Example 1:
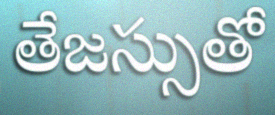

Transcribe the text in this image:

తేజస్సుతో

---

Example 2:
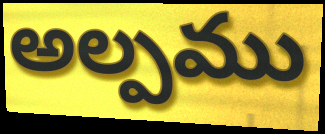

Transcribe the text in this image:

అల్పము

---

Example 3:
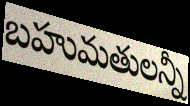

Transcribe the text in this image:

బహుమతులన్నీ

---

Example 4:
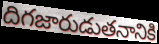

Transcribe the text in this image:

దిగజారుడుతనానికి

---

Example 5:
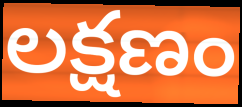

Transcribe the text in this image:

లక్షణం